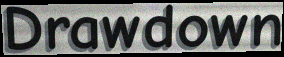
Drawdown